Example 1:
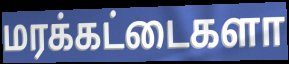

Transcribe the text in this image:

மரக்கட்டைகளா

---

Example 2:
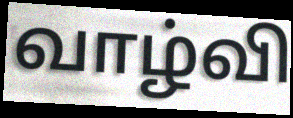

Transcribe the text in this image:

வாழ்வி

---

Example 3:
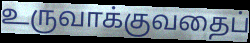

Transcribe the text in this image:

உருவாக்குவதைப்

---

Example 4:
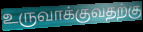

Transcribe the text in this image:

உருவாக்குவதற்கு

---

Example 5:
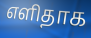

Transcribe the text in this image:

எளிதாக